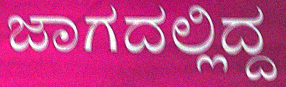
ಜಾಗದಲ್ಲಿದ್ದ